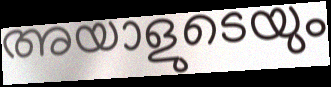
അയാളുടെയും